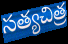
సత్యచిత్ర